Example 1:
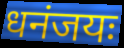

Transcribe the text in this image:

धनंजयः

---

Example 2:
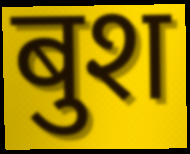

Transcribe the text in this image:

बुश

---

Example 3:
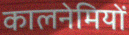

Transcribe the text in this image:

कालनेमियों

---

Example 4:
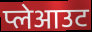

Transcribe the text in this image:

प्लेआउट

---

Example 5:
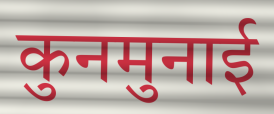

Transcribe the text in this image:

कुनमुनाई